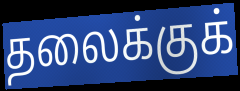
தலைக்குக்